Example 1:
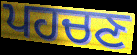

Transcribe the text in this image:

ਪਹਚਣ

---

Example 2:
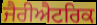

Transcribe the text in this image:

ਜੈਰੀਐਟਰਿਕ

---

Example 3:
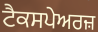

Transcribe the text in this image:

ਟੈਕਸਪੇਅਰਜ਼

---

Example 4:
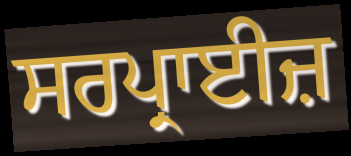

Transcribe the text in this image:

ਸਰਪ੍ਰਾਈਜ਼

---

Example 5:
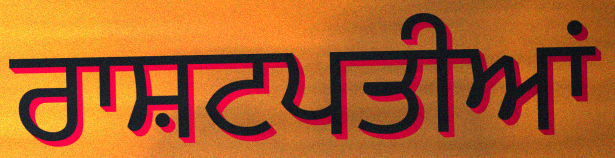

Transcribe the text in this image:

ਰਾਸ਼ਟਪਤੀਆਂ